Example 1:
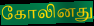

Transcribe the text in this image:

கோலினது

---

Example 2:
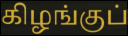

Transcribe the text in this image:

கிழங்குப்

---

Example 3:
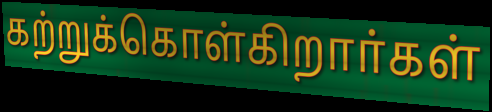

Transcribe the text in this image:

கற்றுக்கொள்கிறார்கள்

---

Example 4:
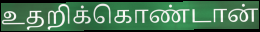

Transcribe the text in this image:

உதறிக்கொண்டான்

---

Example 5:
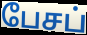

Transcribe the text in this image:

பேசப்